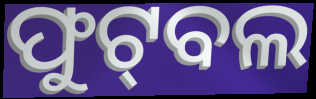
ଫୁଟ୍‌ବଲ